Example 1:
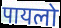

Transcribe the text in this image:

पायलो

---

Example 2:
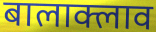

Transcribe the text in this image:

बालाक्लाव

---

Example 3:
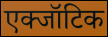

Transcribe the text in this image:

एक्जॉटिक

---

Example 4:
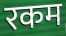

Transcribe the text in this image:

रकम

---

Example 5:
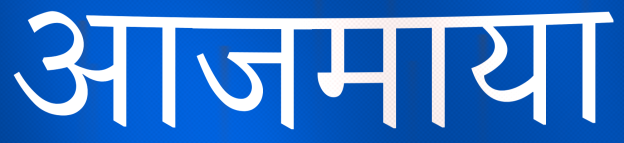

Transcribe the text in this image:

आजमाया